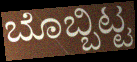
ಬೊಬ್ಬಿಟ್ಟ